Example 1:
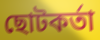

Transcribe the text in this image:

ছোটকর্তা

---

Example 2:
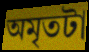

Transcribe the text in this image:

অমৃতটা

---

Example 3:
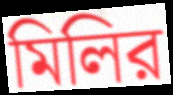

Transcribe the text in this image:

মিলির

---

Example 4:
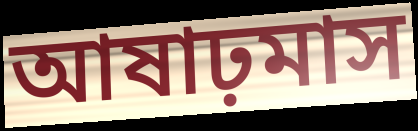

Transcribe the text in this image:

আষাঢ়মাস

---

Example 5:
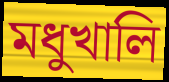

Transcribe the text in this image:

মধুখালি